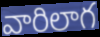
వారిలాగ